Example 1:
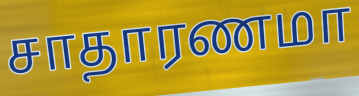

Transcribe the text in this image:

சாதாரணமா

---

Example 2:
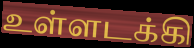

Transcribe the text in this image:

உள்ளடக்கி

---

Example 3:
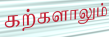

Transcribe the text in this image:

கற்களாலும்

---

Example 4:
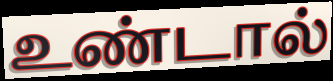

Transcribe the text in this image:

உண்டால்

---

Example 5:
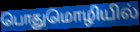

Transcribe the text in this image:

பொதுமொழியில்